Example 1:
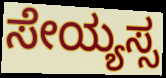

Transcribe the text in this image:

ಸೇಯ್ಯಸ್ಸ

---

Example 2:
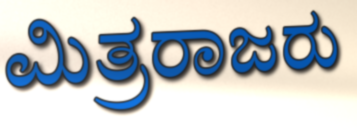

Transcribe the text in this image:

ಮಿತ್ರರಾಜರು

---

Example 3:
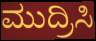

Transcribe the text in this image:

ಮುದ್ರಿಸಿ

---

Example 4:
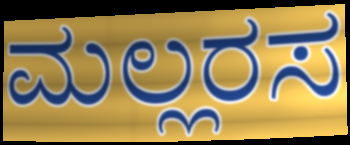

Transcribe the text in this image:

ಮಲ್ಲರಸ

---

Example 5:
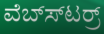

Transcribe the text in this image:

ವೆಬ್ಸ್‍ಟರ್ರ್